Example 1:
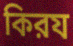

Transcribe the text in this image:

কিরয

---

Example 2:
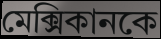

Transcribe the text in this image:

মেক্সিকানকে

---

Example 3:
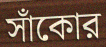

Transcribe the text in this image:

সাঁকোর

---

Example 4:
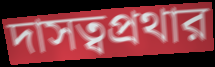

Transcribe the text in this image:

দাসত্বপ্রথার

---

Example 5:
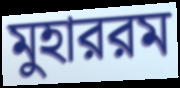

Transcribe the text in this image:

মুহাররম